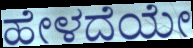
ಹೇಳದೆಯೇ